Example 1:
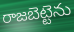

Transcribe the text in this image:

రాజబెట్టెను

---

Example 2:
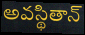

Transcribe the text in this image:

అవస్థితాన్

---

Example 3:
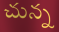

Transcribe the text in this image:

చున్న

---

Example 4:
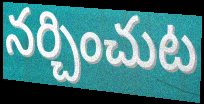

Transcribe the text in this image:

నర్చించుట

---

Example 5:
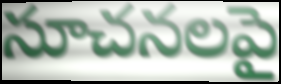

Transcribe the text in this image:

సూచనలపై